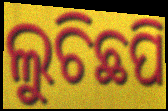
ଲୁଚିଛପି